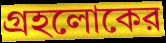
গ্রহলোকের